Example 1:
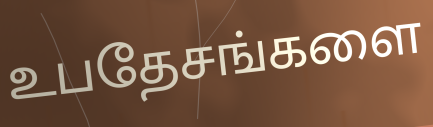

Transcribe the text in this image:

உபதேசங்களை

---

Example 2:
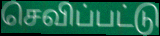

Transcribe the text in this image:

செவிப்பட்டு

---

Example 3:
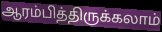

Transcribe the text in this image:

ஆரம்பித்திருக்கலாம்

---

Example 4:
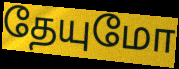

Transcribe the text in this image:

தேயுமோ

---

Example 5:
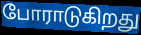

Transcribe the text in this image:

போராடுகிறது